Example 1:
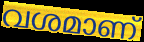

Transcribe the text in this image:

വശമാണ്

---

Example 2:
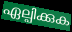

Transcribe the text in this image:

ഏല്പിക്കുക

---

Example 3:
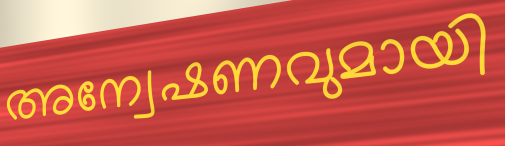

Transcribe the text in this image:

അന്വേഷണവുമായി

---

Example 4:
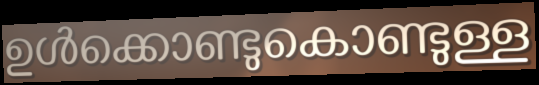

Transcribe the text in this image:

ഉൾക്കൊണ്ടുകൊണ്ടുള്ള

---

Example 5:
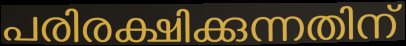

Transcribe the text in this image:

പരിരക്ഷിക്കുന്നതിന്